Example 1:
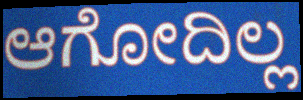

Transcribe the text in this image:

ಆಗೋದಿಲ್ಲ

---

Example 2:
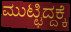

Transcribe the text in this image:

ಮುಟ್ಟಿದ್ದಕ್ಕೆ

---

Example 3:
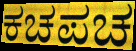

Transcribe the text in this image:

ಕಚಪಚ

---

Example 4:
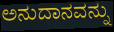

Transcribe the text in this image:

ಅನುದಾನವನ್ನು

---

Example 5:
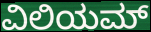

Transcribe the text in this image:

ವಿಲಿಯಮ್